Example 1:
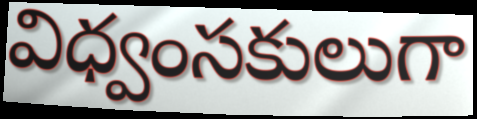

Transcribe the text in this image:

విధ్వంసకులుగా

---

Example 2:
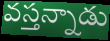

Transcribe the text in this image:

వస్తన్నాడు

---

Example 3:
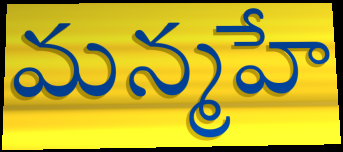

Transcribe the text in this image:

మన్మహే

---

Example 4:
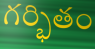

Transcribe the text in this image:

గర్భితం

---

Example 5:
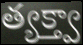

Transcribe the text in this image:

త్యక్త్వా